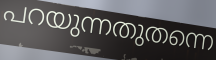
പറയുന്നതുതന്നെ